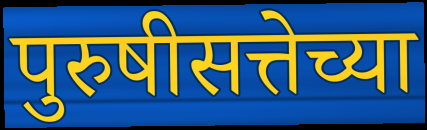
पुरुषीसत्तेच्या